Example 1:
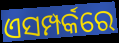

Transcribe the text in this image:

ଏସମ୍ପର୍କରେ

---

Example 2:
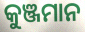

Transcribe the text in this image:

କୁଞ୍ଜମାନ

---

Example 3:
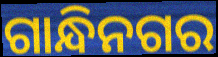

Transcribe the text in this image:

ଗାନ୍ଧିନଗର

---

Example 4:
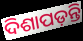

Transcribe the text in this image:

ଦିଶାପଡ଼ନ୍ତି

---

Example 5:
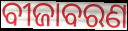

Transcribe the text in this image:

ବୀଜାବରଣ